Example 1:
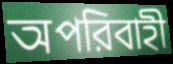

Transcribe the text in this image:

অপরিবাহী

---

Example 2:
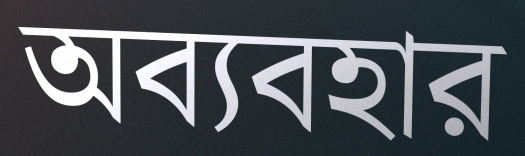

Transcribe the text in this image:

অব্যবহার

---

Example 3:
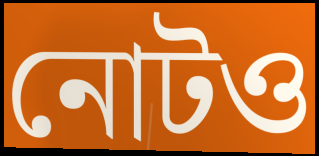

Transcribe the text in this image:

নোটও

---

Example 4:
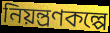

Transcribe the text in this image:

নিয়ন্ত্রণকল্পে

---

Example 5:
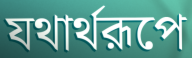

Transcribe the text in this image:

যথার্থরূপে